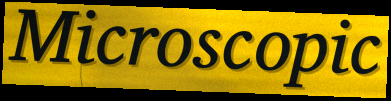
Microscopic